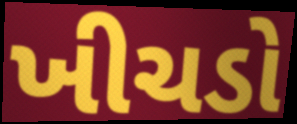
ખીચડો